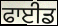
ਫਾਈਡ